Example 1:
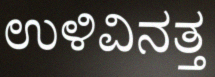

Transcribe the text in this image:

ಉಳಿವಿನತ್ತ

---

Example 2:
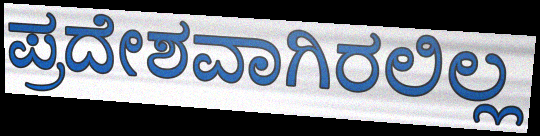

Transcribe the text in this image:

ಪ್ರದೇಶವಾಗಿರಲಿಲ್ಲ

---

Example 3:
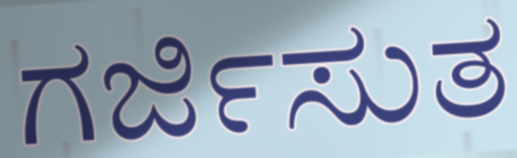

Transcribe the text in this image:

ಗರ್ಜಿಸುತ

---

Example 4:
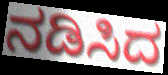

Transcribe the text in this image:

ನಡಿಸಿದ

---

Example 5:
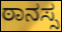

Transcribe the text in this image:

ಠಾನಸ್ಸ